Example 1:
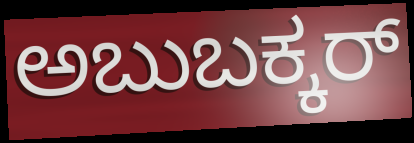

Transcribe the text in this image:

ಅಬುಬಕ್ಕರ್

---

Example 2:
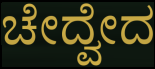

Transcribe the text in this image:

ಚೇದ್ವೇದ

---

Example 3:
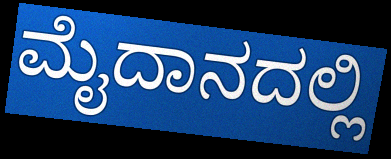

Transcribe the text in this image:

ಮೈದಾನದಲ್ಲಿ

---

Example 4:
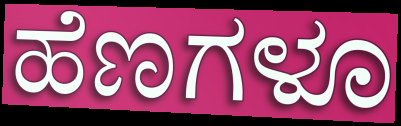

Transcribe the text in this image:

ಹೆಣಗಳೂ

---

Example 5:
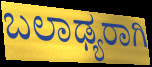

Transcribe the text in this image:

ಬಲಾಢ್ಯರಾಗಿ